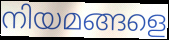
നിയമങ്ങളെ